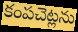
కంపచెట్లను